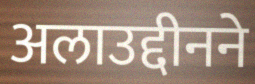
अलाउद्दीनने